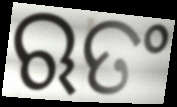
ଋତଂ